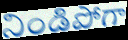
నిండిపోగా